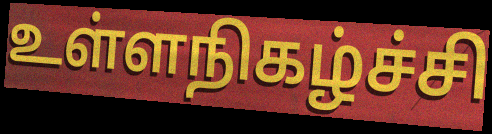
உள்ளநிகழ்ச்சி